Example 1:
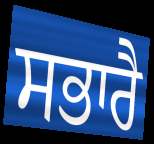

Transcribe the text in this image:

ਸਭਾਰੈ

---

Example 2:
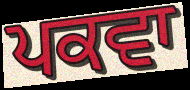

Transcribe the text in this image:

ਪਕਵਾ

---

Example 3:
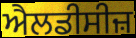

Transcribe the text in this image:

ਐਲਡੀਸੀਜ਼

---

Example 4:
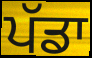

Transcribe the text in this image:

ਪੱਡਾ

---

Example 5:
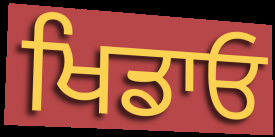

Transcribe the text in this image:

ਖਿਡਾਓ